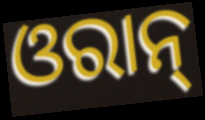
ଓରାନ୍